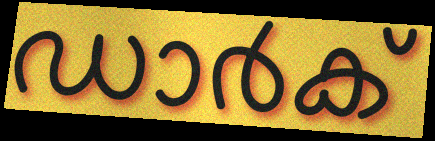
ഡാർക്